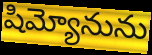
షిమ్యోనును